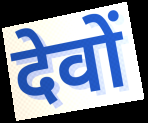
देवों